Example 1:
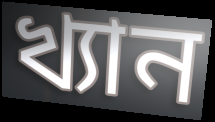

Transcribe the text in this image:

খ্যান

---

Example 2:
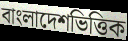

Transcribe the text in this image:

বাংলাদেশভিত্তিক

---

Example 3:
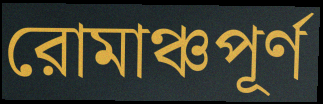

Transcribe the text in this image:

রোমাঞ্চপূর্ণ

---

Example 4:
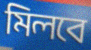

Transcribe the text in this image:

মিলবে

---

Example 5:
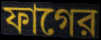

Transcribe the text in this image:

ফাগের